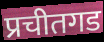
प्रचीतगड